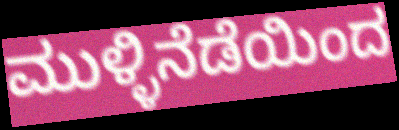
ಮುಳ್ಳಿನೆಡೆಯಿಂದ